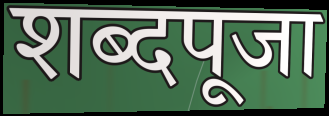
शब्दपूजा